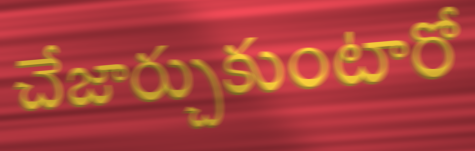
చేజార్చుకుంటారో